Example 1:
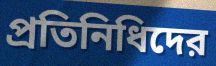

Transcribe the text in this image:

প্রতিনিধিদের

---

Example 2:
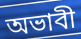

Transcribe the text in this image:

অভাবী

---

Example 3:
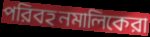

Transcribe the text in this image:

পরিবহনমালিকেরা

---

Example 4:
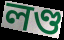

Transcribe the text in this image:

লণ্ড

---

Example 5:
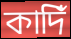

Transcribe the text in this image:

কাদিঁ